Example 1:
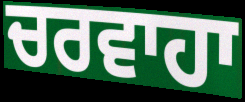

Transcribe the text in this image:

ਚਰਵਾਹਾ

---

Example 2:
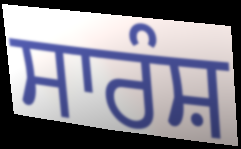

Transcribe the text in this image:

ਸਾਰੰਸ਼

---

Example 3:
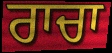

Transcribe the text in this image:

ਰਾਚਾ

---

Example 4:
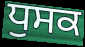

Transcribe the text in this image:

ਧੁਸਕ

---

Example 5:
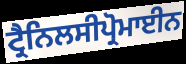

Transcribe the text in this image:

ਟ੍ਰੈਨਿਲਸੀਪ੍ਰੋਮਾਈਨ